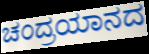
ಚಂದ್ರಯಾನದ